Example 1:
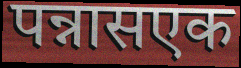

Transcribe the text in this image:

पन्नासएक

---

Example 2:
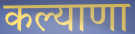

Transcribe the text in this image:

कल्याणा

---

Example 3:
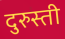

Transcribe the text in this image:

दुरुस्ती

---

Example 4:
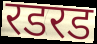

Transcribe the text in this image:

रडरड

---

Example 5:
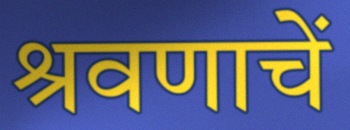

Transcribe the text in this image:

श्रवणाचें